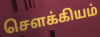
சௌக்கியம்